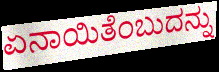
ಏನಾಯಿತೆಂಬುದನ್ನು